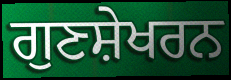
ਗੁਣਸ਼ੇਖਰਨ